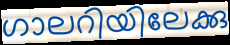
ഗാലറിയിലേക്കു